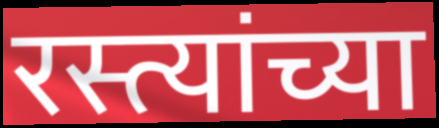
रस्त्यांच्या